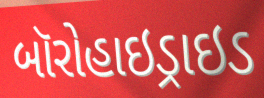
બૉરોહાઇડ્રાઇડ